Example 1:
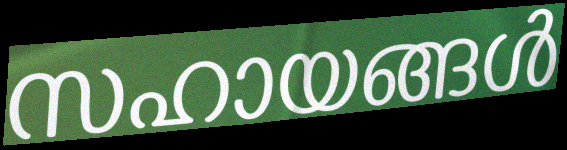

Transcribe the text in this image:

സഹായങ്ങൾ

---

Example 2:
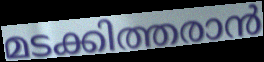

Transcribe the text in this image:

മടക്കിത്തരാൻ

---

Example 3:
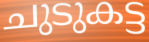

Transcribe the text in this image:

ചുടുകട്ട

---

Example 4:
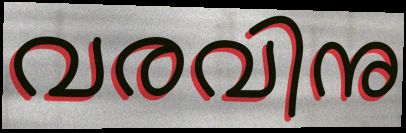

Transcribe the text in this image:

വരവിനു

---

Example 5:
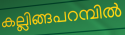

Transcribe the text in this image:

കല്ലിങ്ങപറമ്പിൽ